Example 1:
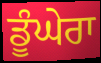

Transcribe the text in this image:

ਡੂੰਘੇਰਾ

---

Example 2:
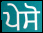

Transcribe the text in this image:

ਪੇਸੋ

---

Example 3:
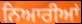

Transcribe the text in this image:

ਨਿਆਰੀਆਂ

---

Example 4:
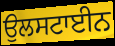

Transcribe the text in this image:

ਉਲਸਟਾਈਨ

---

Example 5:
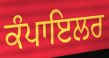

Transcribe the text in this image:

ਕੰਪਾਇਲਰ